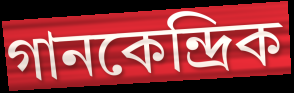
গানকেন্দ্রিক